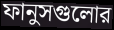
ফানুসগুলোর